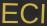
ECI